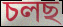
চলছ